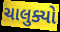
ચાલુક્યો